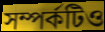
সম্পর্কটিও